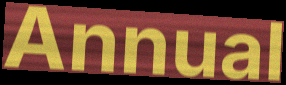
Annual